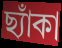
ছ্যাঁকা